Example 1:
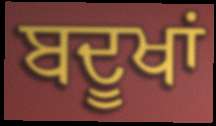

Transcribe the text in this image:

ਬਦੂਖਾਂ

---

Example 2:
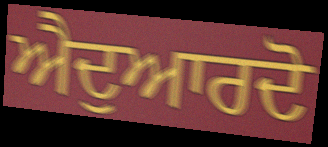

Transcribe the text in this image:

ਐਦੁਆਰਦੋ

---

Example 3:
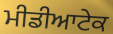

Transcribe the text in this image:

ਮੀਡੀਆਟੇਕ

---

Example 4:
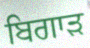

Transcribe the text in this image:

ਬਿਗਾੜ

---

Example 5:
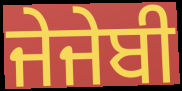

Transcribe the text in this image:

ਜੇਜੇਬੀ